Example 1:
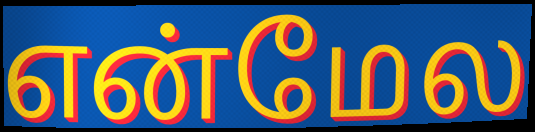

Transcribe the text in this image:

என்மேல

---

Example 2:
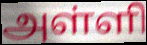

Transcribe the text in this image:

அள்ளி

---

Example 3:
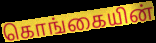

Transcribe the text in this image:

கொங்கையின்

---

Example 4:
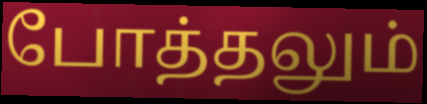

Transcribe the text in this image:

போத்தலும்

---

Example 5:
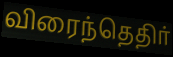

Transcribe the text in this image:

விரைந்தெதிர்